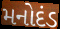
મનોદંડ